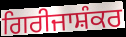
ਗਿਰੀਜਾਸ਼ੰਕਰ